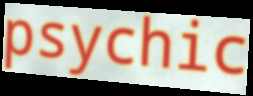
psychic